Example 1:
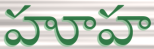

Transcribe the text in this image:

హూహ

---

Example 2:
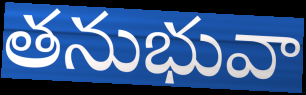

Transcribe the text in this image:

తనుభువా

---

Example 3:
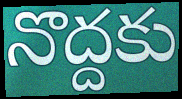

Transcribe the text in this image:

నొద్దకు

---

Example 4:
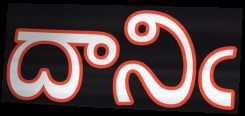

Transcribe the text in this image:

దానిఁ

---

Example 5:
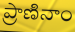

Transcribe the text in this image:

ప్రాణినాం